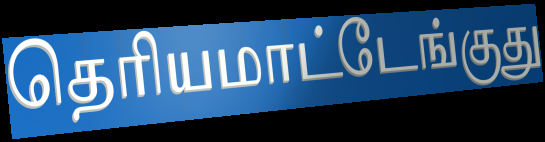
தெரியமாட்டேங்குது